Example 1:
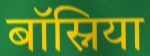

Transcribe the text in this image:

बॉस्निया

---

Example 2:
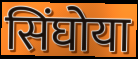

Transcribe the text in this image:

सिंघोया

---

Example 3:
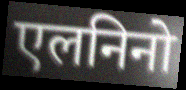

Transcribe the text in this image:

एलनिनो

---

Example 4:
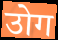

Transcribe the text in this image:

उोग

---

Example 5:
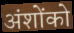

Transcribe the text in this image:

अंशोंको